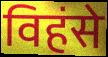
विहंसे